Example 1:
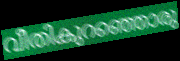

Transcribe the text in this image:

വീതികുറഞ്ഞൊരു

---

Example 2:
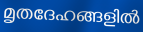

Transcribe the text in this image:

മൃതദേഹങ്ങളിൽ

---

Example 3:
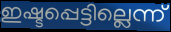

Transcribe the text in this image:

ഇഷ്ടപ്പെട്ടില്ലെന്ന്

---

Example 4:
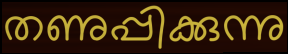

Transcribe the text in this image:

തണുപ്പിക്കുന്നു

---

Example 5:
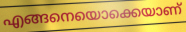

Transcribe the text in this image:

എങ്ങനെയൊക്കെയാണ്